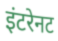
इंटरेनट